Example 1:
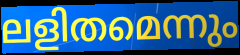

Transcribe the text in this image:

ലളിതമെന്നും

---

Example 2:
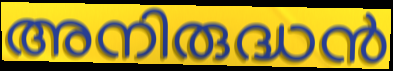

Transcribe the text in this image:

അനിരുദ്ധൻ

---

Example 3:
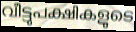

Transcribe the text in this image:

വീട്ടുപക്ഷികളുടെ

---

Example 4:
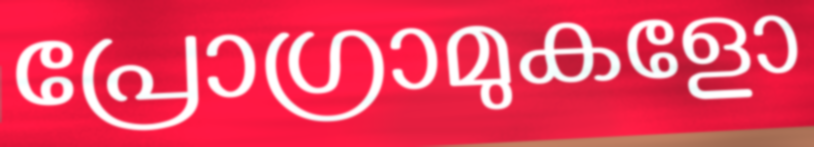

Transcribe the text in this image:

പ്രോഗ്രാമുകളോ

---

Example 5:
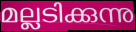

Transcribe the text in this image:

മല്ലടിക്കുന്നു